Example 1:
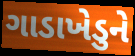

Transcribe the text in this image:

ગાડાખેડુને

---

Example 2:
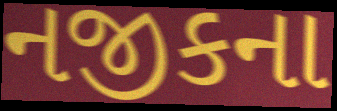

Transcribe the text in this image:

નજીકના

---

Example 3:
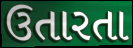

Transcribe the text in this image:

ઉતારતા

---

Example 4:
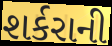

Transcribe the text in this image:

શર્કરાની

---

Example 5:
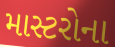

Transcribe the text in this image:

માસ્ટરોના